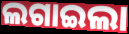
ଲଗାଇଲା